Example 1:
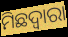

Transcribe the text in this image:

ମିଛଦ୍ଵାରା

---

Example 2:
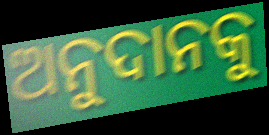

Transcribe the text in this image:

ଅନୁଦାନକୁ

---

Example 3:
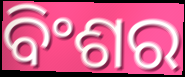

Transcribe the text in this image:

ବିଂଶର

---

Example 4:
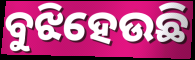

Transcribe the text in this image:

ବୁଝିହେଉଛି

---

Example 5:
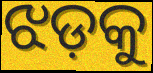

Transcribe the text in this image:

ଝଡ଼କୁ